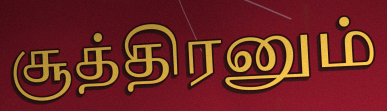
சூத்திரனும்